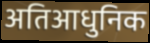
अतिआधुनिक